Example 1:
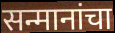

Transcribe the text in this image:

सन्मानांचा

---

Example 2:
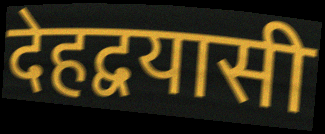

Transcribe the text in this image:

देहद्वयासी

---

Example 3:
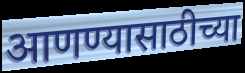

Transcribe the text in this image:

आणण्यासाठीच्या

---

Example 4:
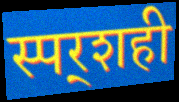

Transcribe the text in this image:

स्पर्शही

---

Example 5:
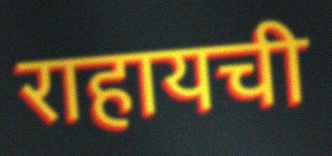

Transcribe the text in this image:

राहायची